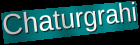
Chaturgrahi